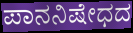
ಪಾನನಿಷೇಧದ